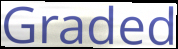
Graded